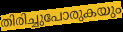
തിരിച്ചുപോരുകയും